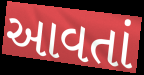
આવતાં